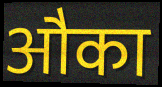
औका